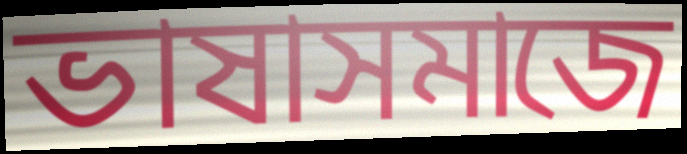
ভাষাসমাজে